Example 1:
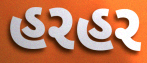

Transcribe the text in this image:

હરહર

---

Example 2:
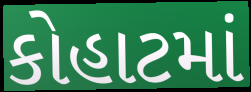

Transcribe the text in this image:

કોહાટમાં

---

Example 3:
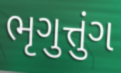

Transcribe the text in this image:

ભૃગુત્તુંગ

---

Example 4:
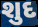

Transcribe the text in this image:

શુદ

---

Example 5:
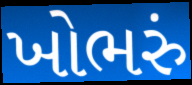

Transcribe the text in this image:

ખોભરું